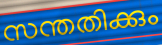
സന്തതിക്കും